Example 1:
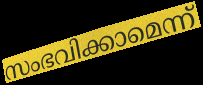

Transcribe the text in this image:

സംഭവിക്കാമെന്ന്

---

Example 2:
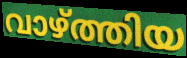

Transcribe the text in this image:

വാഴ്ത്തിയ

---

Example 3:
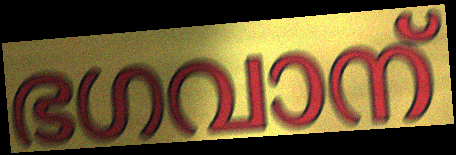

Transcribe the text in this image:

ഭഗവാന്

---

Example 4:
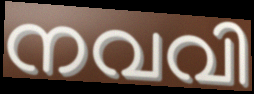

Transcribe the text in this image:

നവവി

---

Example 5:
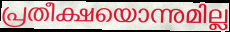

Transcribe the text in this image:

പ്രതീക്ഷയൊന്നുമില്ല